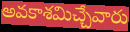
అవకాశమిచ్చేవారు